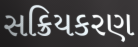
સક્રિયકરણ